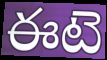
ఈటె